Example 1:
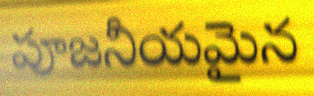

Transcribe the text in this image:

పూజనీయమైన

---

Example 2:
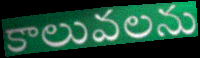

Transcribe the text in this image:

కాలువలను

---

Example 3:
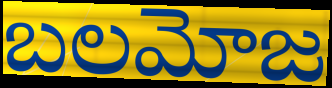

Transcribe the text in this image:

బలమోజ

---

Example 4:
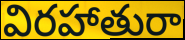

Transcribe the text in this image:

విరహాతురా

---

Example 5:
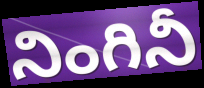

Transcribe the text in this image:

నింగినీ